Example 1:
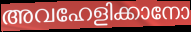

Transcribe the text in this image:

അവഹേളിക്കാനോ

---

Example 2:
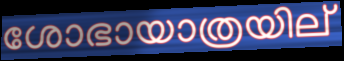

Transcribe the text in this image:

ശോഭായാത്രയില്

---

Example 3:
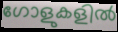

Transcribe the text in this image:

ഗോളുകളിൽ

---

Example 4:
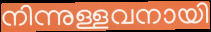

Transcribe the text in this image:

നിന്നുള്ളവനായി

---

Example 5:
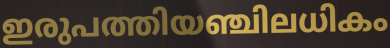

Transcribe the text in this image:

ഇരുപത്തിയഞ്ചിലധികം